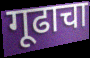
गूढाचा